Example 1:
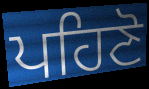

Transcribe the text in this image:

ਪਹਿਣੋ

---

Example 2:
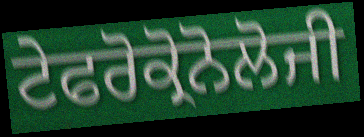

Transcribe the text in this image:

ਟੇਫਰੋਕ੍ਰੋਨੋਲੋਜੀ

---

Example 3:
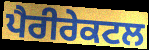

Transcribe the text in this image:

ਪੈਰੀਰੇਕਟਲ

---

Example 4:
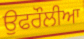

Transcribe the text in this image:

ਉਫਰੌਲੀਆ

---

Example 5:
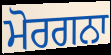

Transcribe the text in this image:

ਮੋਰਗਨਾ